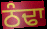
ਠੰਢਾ